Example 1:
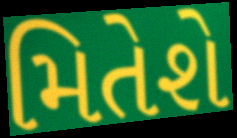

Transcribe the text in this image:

મિતેશે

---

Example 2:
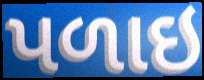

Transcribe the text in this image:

પળાઇ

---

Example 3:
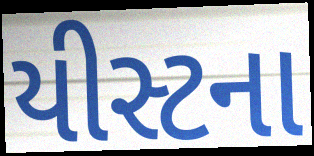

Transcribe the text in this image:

યીસ્ટના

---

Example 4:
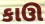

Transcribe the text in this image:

કાઊ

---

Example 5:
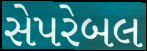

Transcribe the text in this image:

સેપરેબલ